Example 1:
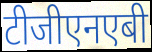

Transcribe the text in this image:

टीजीएनएबी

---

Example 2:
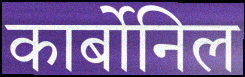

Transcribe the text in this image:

कार्बोनिल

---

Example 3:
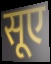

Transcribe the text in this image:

सूए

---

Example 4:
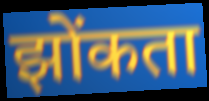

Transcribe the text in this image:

झोंकता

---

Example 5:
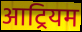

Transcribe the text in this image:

आट्रियम